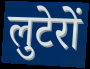
लुटेरों